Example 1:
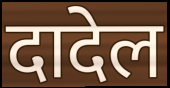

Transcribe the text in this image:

दादेल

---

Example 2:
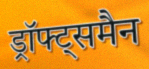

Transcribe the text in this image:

ड्रॉफ्ट्समैन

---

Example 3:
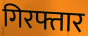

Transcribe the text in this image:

गिरफ्तार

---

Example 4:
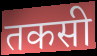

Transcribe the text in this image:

तकसी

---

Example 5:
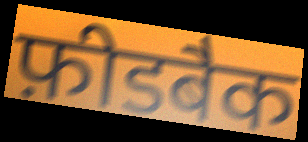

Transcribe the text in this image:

फ़ीडबैक